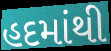
હદમાંથી